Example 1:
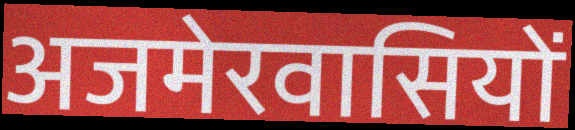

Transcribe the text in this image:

अजमेरवासियों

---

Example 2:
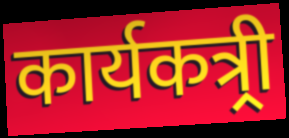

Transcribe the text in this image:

कार्यकत्र्री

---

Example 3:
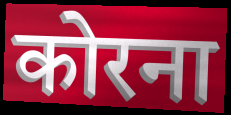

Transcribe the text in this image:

कोरना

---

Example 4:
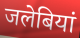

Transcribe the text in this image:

जलेबियां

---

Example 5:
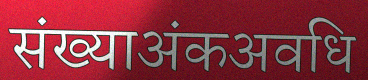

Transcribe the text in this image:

संख्याअंकअवधि